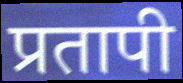
प्रतापी